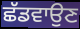
ਛੱਡਵਾਉਣ